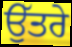
ਉੱਤਰੇ